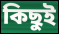
কিছুই